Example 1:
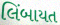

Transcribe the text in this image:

લિંબાયત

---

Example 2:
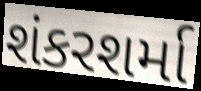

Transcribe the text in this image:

શંકરશર્મા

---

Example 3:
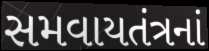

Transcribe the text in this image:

સમવાયતંત્રનાં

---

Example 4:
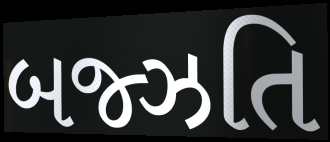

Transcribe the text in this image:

બજ્ઝતિ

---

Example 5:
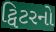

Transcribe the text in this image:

ટ્વિટરનો